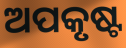
ଅପକୃଷ୍ଟ